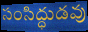
సంసిద్ధుడవు